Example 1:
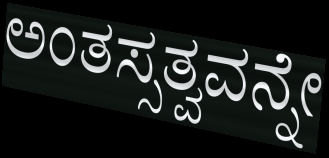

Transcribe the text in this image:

ಅಂತಸ್ಸತ್ವವನ್ನೇ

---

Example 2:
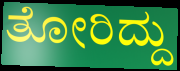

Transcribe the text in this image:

ತೋರಿದ್ದು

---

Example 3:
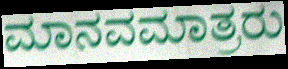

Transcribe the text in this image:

ಮಾನವಮಾತ್ರರು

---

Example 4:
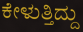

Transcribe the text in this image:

ಕೇಳುತ್ತಿದ್ದು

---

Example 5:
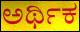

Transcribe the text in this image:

ಅರ್ಥಿಕ